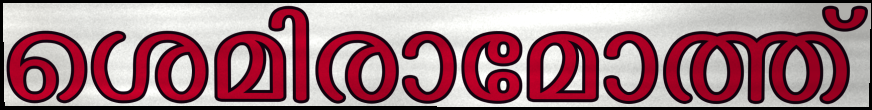
ശെമിരാമോത്ത്